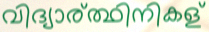
വിദ്യാര്ത്ഥിനികള്